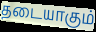
தடையாகும்